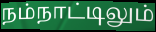
நம்நாட்டிலும்